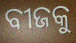
ବୀଜକୁ